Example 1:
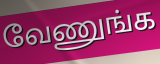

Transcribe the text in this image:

வேணுங்க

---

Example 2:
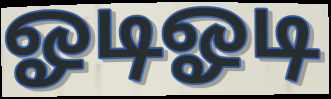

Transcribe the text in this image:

ஓடிஓடி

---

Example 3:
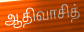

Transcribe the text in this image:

ஆதிவாசித்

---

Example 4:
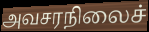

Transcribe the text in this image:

அவசரநிலைச்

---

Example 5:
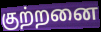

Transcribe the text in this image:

குற்றனை